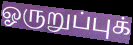
ஓருறுப்புக்